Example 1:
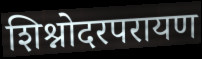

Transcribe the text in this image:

शिश्नोदरपरायण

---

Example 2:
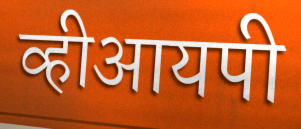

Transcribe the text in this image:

व्हीआयपी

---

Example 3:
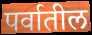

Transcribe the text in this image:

पर्वातील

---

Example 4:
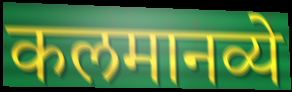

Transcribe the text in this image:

कलमानव्ये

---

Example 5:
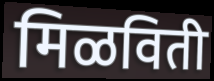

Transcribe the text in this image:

मिळविती